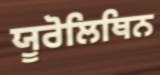
ਯੂਰੋਲਿਥਿਨ